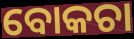
ବୋକଚା